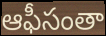
ఆఫీసంతా